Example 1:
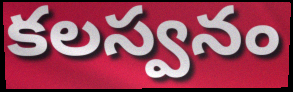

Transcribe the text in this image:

కలస్వనం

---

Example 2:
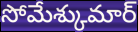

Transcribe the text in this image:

సోమేశ్కుమార్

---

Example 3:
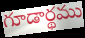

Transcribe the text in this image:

గూడార్థము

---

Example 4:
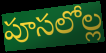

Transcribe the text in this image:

పూసలోల్ల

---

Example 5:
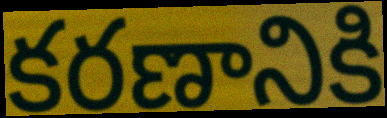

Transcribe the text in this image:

కరణానికి